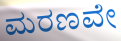
ಮರಣವೇ